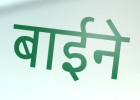
बाईने